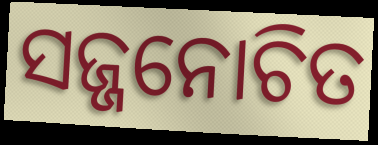
ସଜ୍ଜନୋଚିତ